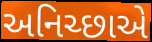
અનિચ્છાએ